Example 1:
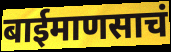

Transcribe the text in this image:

बाईमाणसाचं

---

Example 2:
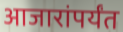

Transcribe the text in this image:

आजारांपर्यंत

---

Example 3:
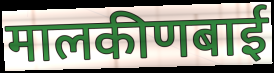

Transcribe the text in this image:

मालकीणबाई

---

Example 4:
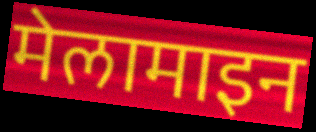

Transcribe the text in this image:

मेलामाइन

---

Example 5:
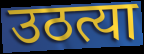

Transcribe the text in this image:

उठत्या